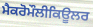
ਮੈਕਰੋਮੌਲੀਕਿਊਲਰ